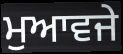
ਮੁਆਵਜੇ